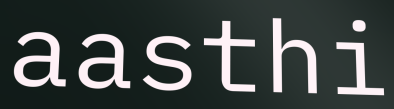
aasthi